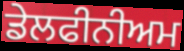
ਡੇਲਫੀਨੀਅਮ